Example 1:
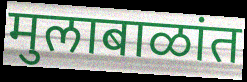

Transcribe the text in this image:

मुलाबाळांत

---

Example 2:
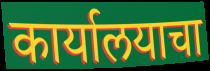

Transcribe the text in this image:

कार्यालयाचा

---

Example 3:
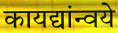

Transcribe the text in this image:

कायद्यांन्वये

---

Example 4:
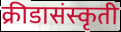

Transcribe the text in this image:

क्रीडासंस्कृती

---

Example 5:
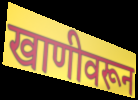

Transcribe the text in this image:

खाणीवरून